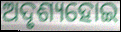
ଅଦୃଶ୍ୟହୋଇ